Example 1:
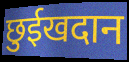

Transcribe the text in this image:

छुईखदान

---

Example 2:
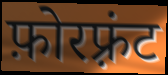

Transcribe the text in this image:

फ़ोरफ़्रंट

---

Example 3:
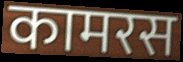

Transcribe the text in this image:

कामरस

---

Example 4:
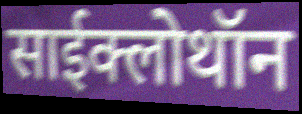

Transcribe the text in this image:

साईक्लोथॉन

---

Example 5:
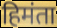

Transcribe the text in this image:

हिमंता